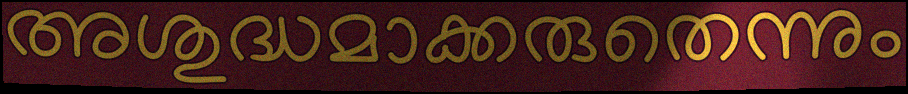
അശുദ്ധമാക്കരുതെന്നും